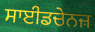
ਸਾਈਡਚੇਨਜ਼